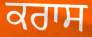
ਕਰਾਸ